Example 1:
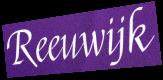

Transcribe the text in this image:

Reeuwijk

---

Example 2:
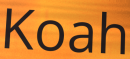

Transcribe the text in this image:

Koah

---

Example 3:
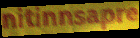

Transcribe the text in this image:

nitinnsapre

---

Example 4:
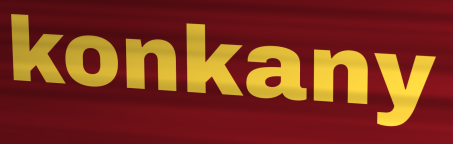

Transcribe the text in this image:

konkany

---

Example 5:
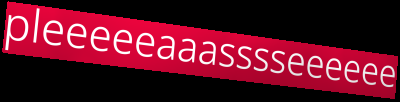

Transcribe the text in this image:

pleeeeeaaasssseeeeee